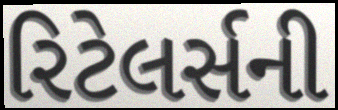
રિટેલર્સની